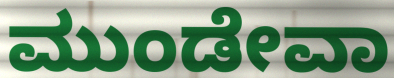
ಮುಂಡೇವಾ